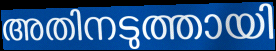
അതിനടുത്തായി